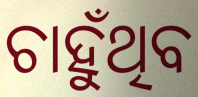
ଚାହୁଁଥିବ